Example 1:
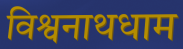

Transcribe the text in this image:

विश्वनाथधाम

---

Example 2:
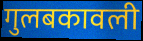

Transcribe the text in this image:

गुलबकावली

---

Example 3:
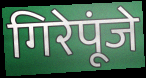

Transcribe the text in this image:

गिरेपूंजे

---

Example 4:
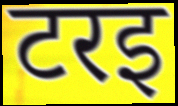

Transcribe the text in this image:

टरइ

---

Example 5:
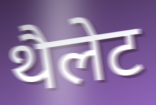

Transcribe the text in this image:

थैलेट